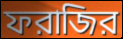
ফরাজির